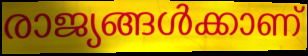
രാജ്യങ്ങൾക്കാണ്